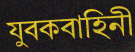
যুবকবাহিনী